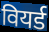
वियर्ड